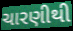
ચારણીથી